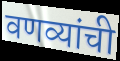
वणव्यांची